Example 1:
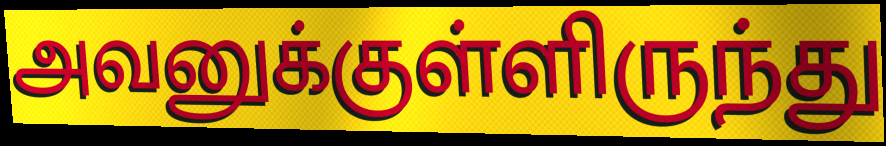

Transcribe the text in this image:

அவனுக்குள்ளிருந்து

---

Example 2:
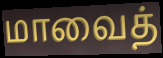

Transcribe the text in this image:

மாவைத்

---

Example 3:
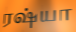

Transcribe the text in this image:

ரஷ்யா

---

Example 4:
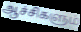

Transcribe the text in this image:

ஆச்சிகளும்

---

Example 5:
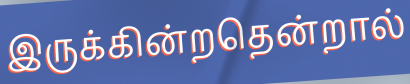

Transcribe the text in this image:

இருக்கின்றதென்றால்